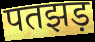
पतझड़